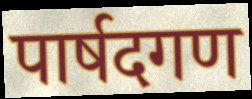
पार्षदगण